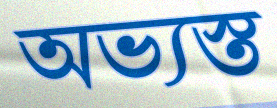
অভ্যস্ত